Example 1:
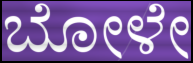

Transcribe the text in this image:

ಬೋಳೇ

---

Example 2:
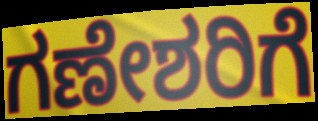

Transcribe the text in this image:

ಗಣೇಶರಿಗೆ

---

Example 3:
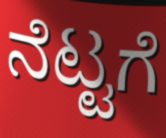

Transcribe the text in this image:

ನೆಟ್ಟಗೆ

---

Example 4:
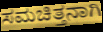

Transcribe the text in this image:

ಸಮಚಿತ್ತನಾಗಿ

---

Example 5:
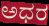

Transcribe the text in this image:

ಅಧರ